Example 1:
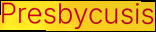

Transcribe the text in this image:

Presbycusis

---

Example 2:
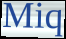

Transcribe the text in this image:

Miq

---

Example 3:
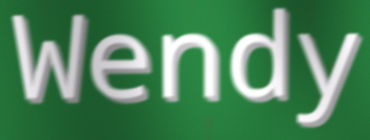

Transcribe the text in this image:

Wendy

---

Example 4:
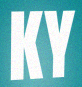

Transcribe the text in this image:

KY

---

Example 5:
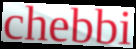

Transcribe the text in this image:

chebbi